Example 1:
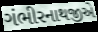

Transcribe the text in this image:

ગંભીરનાથજીએ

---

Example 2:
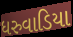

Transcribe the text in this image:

ધરુવાડિયા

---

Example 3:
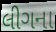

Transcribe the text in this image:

લીગના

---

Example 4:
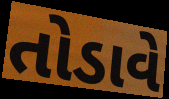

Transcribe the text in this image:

તોડાવે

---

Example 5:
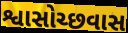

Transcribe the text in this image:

શ્વાસોચ્છવાસ